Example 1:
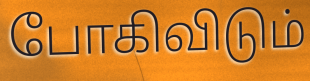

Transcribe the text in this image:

போகிவிடும்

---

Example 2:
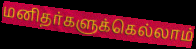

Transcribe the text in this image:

மனிதர்களுக்கெல்லாம்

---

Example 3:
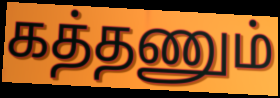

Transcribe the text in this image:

கத்தணும்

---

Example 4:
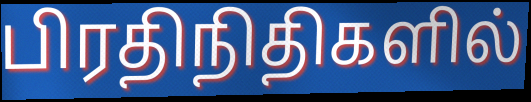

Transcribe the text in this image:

பிரதிநிதிகளில்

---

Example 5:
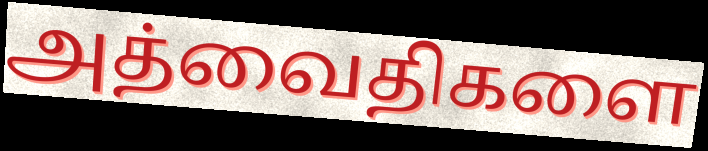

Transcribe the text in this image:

அத்வைதிகளை